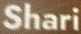
Shari